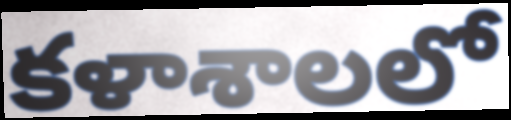
కళాశాలలో